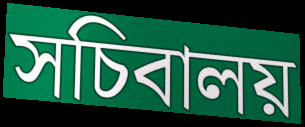
সচিবালয়